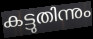
കട്ടുതിന്നും